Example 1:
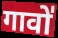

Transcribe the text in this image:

गावो॑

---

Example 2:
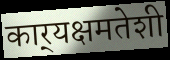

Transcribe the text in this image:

कार्यक्षमतेशी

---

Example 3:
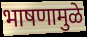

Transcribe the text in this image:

भाषणामुळे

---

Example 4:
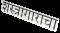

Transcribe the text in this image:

शस्त्रागाराचा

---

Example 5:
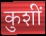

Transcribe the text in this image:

कुशीं